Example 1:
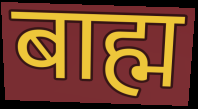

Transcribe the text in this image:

बाह्म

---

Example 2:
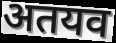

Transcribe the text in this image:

अतयव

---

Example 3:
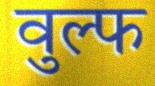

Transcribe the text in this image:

वुल्फ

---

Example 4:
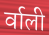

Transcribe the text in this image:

र्वाली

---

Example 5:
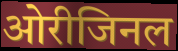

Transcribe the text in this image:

ओरीजिनल